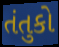
તંતુકો